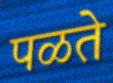
पळते